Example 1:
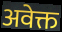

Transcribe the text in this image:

अवेक्त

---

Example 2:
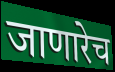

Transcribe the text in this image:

जाणारेच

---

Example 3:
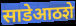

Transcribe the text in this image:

साडेआठशे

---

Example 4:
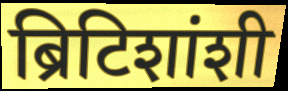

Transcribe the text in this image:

ब्रिटिशांशी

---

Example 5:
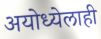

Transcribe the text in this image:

अयोध्येलाही